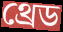
থ্রেড